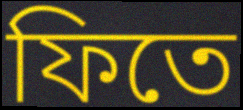
ফিতে